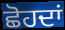
ਛੋਹਦਾਂ